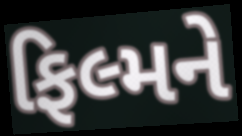
ફિલ્મને